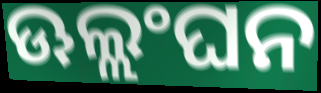
ଊଲ୍ଲଂଘନ